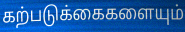
கற்படுக்கைகளையும்